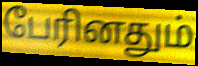
பேரினதும்